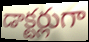
డాక్టర్లుగా